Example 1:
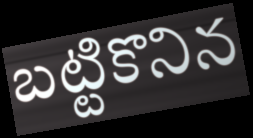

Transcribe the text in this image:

బట్టికొనిన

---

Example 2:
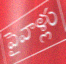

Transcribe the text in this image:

పైవాళ్లు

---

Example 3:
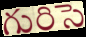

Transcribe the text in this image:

గురిసె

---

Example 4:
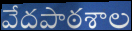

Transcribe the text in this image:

వేదపాఠశాల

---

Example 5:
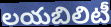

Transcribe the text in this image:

లయబిలిటీ